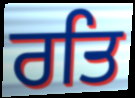
ਰਤਿ